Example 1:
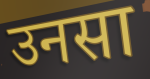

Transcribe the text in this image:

उनसा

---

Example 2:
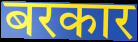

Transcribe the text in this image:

बरकार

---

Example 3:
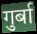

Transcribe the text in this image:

गुर्बा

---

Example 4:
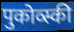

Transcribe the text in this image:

पुकोव्स्की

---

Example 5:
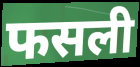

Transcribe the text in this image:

फसली